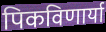
पिकविणार्या